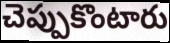
చెప్పుకొంటారు